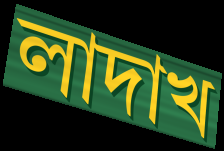
লাদাখ